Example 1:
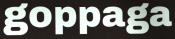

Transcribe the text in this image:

goppaga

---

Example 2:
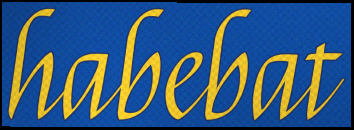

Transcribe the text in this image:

habebat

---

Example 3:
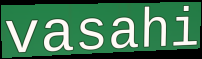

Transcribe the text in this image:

vasahi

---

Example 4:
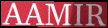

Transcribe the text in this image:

AAMIR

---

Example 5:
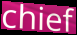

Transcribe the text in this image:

chief